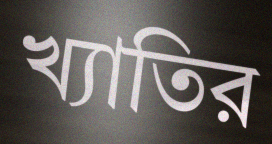
খ্যাতির